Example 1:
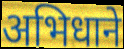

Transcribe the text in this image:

अभिधाने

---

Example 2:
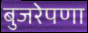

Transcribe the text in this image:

बुजरेपणा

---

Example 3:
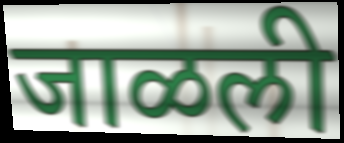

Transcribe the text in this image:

जाळली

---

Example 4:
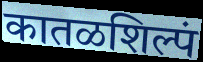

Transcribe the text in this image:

कातळशिल्पं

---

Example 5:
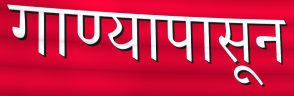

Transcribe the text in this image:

गाण्यापासून